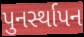
પુનર્સ્થાપન